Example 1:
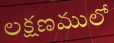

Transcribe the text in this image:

లక్షణములో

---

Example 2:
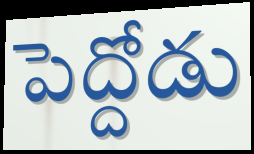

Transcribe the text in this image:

పెద్దోడు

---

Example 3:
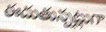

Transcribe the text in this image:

ఈదుతున్నట్లుగా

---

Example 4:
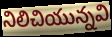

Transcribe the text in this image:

నిలిచియున్నవి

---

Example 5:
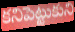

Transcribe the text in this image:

కనిపెట్టుకుని